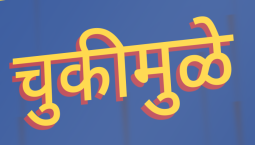
चुकीमुळे